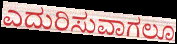
ಎದುರಿಸುವಾಗಲೂ